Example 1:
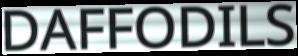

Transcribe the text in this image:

DAFFODILS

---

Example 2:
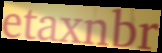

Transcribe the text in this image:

etaxnbr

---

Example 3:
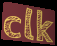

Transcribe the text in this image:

clk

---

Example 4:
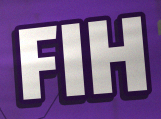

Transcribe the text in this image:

FIH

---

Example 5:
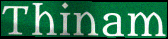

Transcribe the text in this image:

Thinam